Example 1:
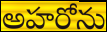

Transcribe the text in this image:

అహరోను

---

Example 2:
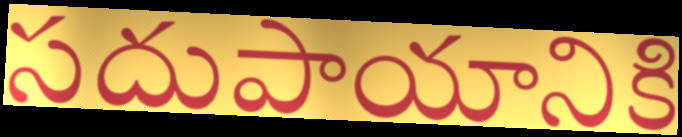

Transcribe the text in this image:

సదుపాయానికి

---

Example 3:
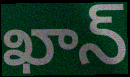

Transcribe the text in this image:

ఖాన్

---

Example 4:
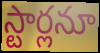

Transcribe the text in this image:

స్టార్లనూ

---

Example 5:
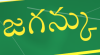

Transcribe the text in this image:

జగన్కు